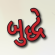
બુદ્ધે